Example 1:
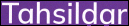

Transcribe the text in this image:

Tahsildar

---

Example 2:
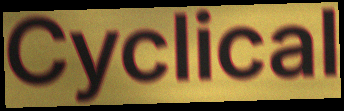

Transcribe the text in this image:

Cyclical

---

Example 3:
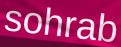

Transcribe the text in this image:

sohrab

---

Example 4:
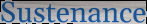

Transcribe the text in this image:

Sustenance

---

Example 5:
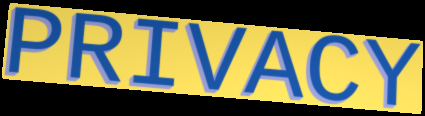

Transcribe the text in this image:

PRIVACY